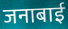
जनाबाई